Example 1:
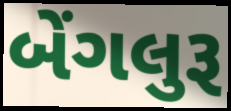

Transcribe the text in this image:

બેંગલુરૂ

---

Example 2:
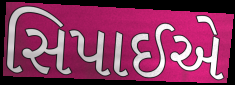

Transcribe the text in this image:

સિપાઈએ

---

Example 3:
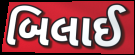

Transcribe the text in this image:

બિલાઈ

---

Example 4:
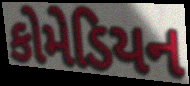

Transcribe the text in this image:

કોમેડિયન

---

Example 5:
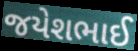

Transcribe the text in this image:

જયેશભાઈ